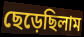
ছেড়েছিলাম